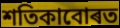
শতিকাবোৰত